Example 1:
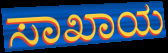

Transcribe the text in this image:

ಸಾಖಾಯ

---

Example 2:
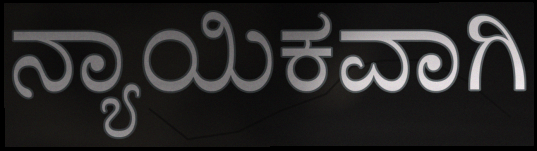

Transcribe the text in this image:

ನ್ಯಾಯಿಕವಾಗಿ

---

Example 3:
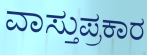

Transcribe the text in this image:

ವಾಸ್ತುಪ್ರಕಾರ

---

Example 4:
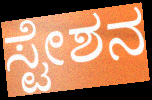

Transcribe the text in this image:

ಸ್ಟೇಶನ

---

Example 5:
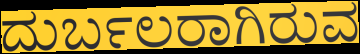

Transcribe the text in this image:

ದುರ್ಬಲರಾಗಿರುವ